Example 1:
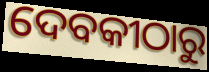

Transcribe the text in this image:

ଦେବକୀଠାରୁ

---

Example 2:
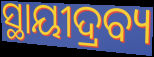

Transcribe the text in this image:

ସ୍ଥାୟୀଦ୍ରବ୍ୟ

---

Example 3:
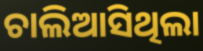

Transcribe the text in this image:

ଚାଲିଆସିଥିଲା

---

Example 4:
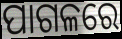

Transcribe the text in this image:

ପାଗଳରେ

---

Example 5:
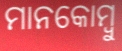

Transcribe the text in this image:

ମାନକୋମ୍ବୁ